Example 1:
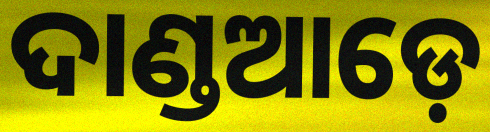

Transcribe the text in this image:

ଦାଣ୍ଡଆଡ଼େ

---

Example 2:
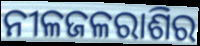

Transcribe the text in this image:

ନୀଳଜଳରାଶିର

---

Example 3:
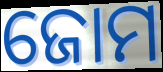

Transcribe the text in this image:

ଜୋମ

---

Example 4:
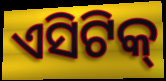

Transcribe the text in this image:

ଏସିଟିକ୍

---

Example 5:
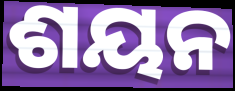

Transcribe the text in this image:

ଶୟନ